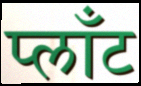
प्लाँट